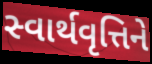
સ્વાર્થવૃત્તિને